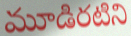
మూడిరటిని